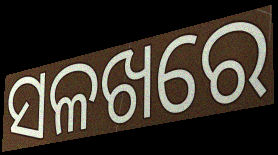
ସଳଖରେ